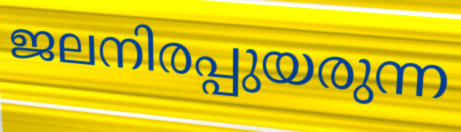
ജലനിരപ്പുയരുന്ന